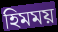
হিমময়